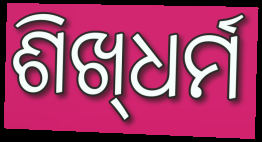
ଶିଖ୍‌ଧର୍ମ